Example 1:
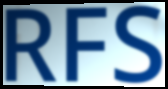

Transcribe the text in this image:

RFS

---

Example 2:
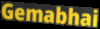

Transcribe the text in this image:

Gemabhai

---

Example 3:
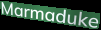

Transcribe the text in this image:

Marmaduke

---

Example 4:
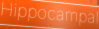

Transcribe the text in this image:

Hippocampal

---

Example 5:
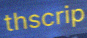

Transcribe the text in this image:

thscrip